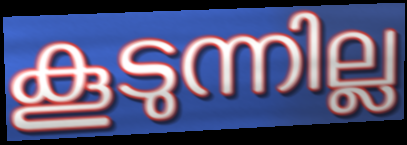
കൂടുന്നില്ല